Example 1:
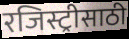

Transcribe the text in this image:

रजिस्ट्रीसाठी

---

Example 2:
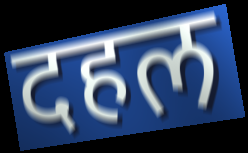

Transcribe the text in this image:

दहल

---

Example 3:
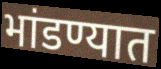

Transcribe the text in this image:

भांडण्यात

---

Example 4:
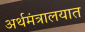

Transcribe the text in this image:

अर्थमंत्रालयात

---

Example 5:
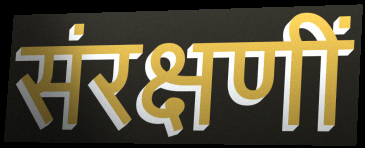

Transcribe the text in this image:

संरक्षणीं